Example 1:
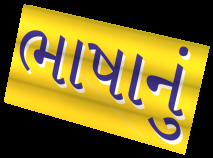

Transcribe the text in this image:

ભાષાનું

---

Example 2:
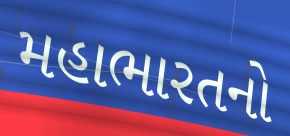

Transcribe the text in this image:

મહાભારતનો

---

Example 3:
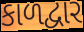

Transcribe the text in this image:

કાળદ્વાર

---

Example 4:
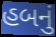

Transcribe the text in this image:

હબનું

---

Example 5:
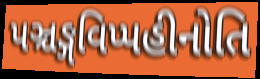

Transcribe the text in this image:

પઞ્ચઙ્ગવિપ્પહીનોતિ